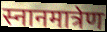
स्नानमात्रेण